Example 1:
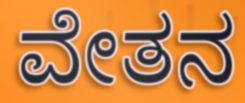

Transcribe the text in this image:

ವೇತನ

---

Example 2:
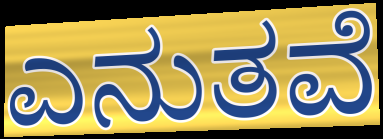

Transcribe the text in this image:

ಎನುತವೆ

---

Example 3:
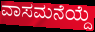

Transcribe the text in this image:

ವಾಸಮನೆಯ್ದೆ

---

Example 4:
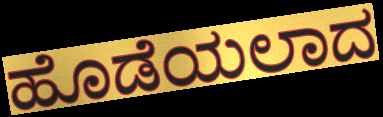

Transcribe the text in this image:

ಹೊಡೆಯಲಾದ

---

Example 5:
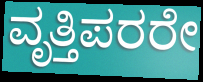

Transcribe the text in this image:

ವೃತ್ತಿಪರರೇ